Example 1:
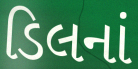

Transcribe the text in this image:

ડિલનાં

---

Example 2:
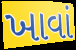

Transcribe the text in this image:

ખાવાં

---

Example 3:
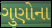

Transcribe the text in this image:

ગુણોના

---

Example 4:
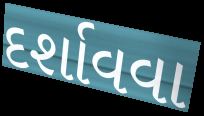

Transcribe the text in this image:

દર્શાવવા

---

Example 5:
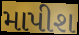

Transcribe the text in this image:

માપીશ